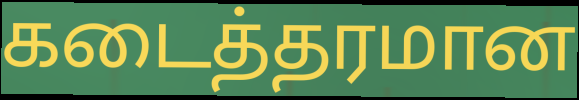
கடைத்தரமான